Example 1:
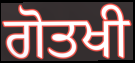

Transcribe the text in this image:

ਗੋਤਖੀ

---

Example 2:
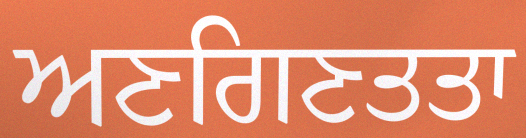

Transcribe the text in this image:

ਅਣਗਿਣਤਤਾ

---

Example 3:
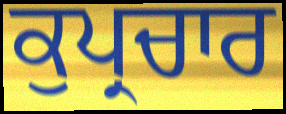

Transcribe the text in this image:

ਕੁਪ੍ਰਚਾਰ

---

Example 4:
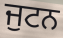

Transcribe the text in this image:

ਜੁਟਨ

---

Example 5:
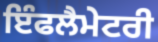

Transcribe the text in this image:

ਇੰਫਲੈਮੇਟਰੀ